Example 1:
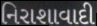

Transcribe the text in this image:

નિરાશાવાદી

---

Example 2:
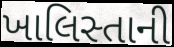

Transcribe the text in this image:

ખાલિસ્તાની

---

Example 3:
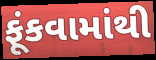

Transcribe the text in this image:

ફૂંકવામાંથી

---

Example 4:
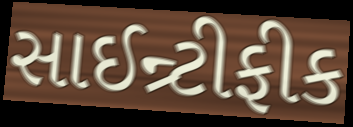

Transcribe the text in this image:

સાઈન્ર્ટીફીક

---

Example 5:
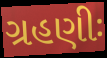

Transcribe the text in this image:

ગ્રહણીઃ